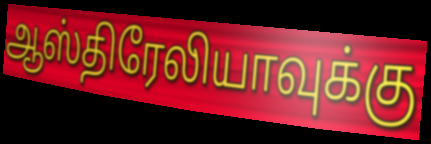
ஆஸ்திரேலியாவுக்கு